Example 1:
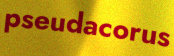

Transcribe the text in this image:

pseudacorus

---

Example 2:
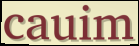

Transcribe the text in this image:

cauim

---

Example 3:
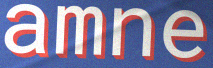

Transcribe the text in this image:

amne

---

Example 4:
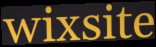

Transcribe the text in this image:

wixsite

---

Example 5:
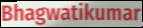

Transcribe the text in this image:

Bhagwatikumar